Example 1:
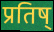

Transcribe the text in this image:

प्रतिष्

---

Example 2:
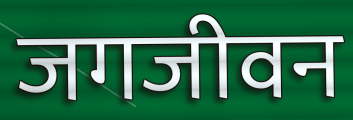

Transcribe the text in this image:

जगजीवन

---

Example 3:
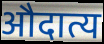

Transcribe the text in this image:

औदात्य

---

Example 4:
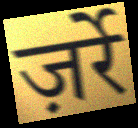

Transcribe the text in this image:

ज़र्रे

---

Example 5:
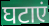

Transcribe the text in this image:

घटाएं